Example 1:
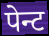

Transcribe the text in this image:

पेन्ट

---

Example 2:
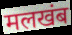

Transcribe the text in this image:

मलखंब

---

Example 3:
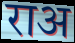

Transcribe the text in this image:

राअ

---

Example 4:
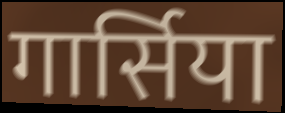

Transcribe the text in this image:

गार्सिया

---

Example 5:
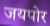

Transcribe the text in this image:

जयपोर